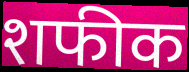
शफीक